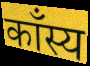
काँस्य